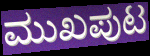
ಮುಖಪುಟ